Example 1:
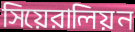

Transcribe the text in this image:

সিয়েরালিয়ন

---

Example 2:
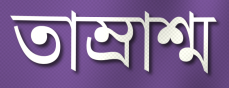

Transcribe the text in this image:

তাম্রাশ্ম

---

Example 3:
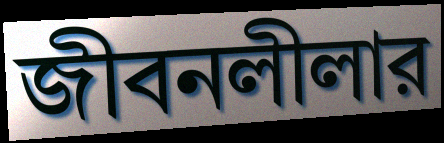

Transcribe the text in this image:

জীবনলীলার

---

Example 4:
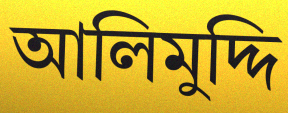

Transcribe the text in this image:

আলিমুদ্দি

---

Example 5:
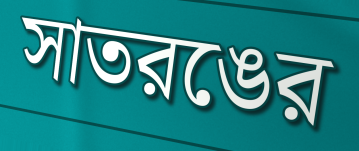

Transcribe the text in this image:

সাতরঙের